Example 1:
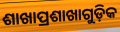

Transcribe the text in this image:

ଶାଖାପ୍ରଶାଖାଗୁଡ଼ିକ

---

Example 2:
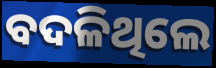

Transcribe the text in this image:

ବଦଳିଥିଲେ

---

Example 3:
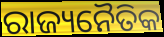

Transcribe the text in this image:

ରାଜ୍ୟନୈତିକ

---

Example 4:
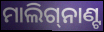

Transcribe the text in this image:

ମାଲିଗ୍‌ନାଣ୍ଟ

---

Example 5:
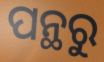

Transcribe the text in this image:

ପନ୍ଥରୁ